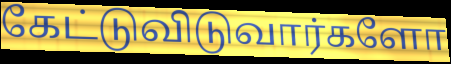
கேட்டுவிடுவார்களோ